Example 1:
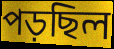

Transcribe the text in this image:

পড়ছিল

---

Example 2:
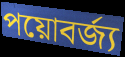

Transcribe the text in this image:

পয়োবর্জ্য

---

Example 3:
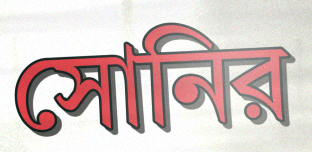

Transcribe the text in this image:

সোনির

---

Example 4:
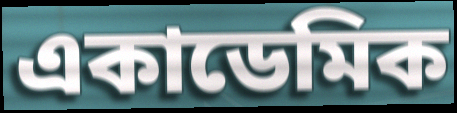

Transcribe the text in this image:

একাডেমিক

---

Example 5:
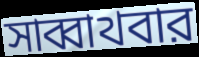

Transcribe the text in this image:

সাব্বাথবার